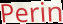
Perin